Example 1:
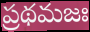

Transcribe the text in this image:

ప్రథమజః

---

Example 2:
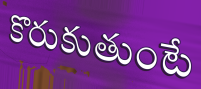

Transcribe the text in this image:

కొరుకుతుంటే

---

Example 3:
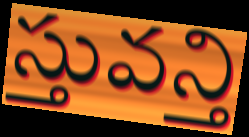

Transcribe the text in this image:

స్తువన్తి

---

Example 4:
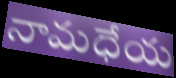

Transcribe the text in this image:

నామధేయ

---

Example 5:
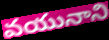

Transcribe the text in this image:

వయునాని